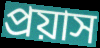
প্ৰয়াস